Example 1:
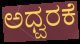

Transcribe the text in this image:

ಅಧ್ವರಕೆ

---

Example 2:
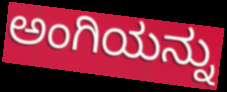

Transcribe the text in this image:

ಅಂಗಿಯನ್ನು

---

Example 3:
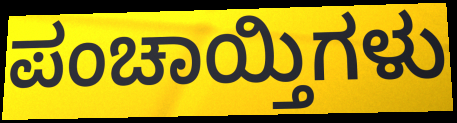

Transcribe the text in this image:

ಪಂಚಾಯ್ತಿಗಳು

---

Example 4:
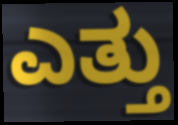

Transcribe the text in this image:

ಎತ್ತು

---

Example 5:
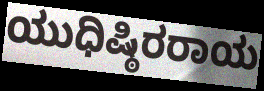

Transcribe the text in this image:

ಯುಧಿಷ್ಠಿರರಾಯ